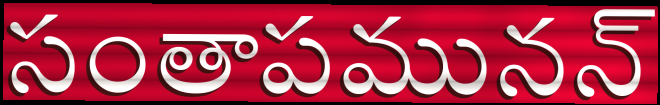
సంతాపమునన్